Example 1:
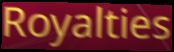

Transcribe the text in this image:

Royalties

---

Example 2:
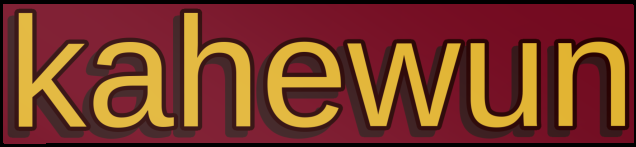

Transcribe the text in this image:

kahewun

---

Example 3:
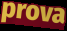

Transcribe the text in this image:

prova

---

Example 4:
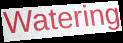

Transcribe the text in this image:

Watering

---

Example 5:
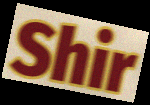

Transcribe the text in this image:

Shir